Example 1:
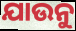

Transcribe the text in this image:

ଯାଉନୁ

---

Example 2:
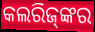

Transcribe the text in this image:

କଲରିଜ୍‌ଙ୍କର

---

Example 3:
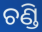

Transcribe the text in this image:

ଚଣ୍ଡି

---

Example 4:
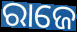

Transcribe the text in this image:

ରାଜେ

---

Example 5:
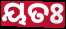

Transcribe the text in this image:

ୟତଃ